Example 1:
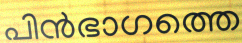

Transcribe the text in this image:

പിൻഭാഗത്തെ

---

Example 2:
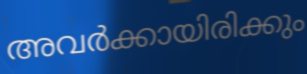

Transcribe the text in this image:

അവർക്കായിരിക്കും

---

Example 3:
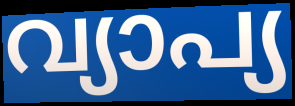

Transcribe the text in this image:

വ്യാപ്യ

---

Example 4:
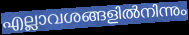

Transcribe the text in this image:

എല്ലാവശങ്ങളിൽനിന്നും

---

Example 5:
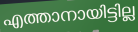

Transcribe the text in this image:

എത്താനായിട്ടില്ല